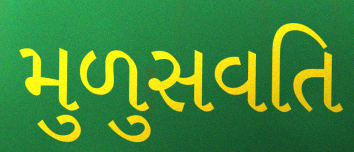
મુળુસવતિ